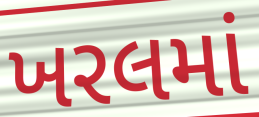
ખરલમાં